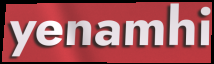
yenamhi